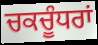
ਚਕਚੂੰਧਰਾਂ